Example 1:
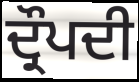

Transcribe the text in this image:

ਦ੍ਰੌਪਦੀ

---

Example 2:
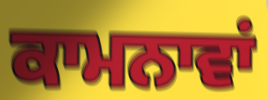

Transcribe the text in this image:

ਕਾਮਨਾਵਾਂ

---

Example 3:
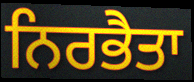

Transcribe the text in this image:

ਨਿਰਭੈਤਾ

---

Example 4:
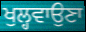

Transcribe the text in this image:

ਖੁਲ੍ਹਵਾਉਣਾ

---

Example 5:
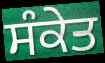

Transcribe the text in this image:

ਸੰਕੇਤ